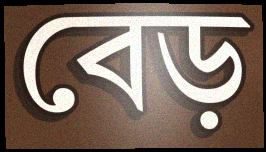
বেড়